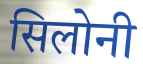
सिलोनी